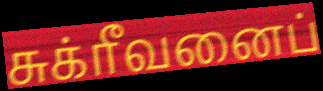
சுக்ரீவனைப்